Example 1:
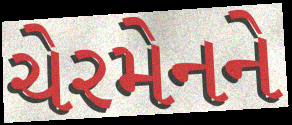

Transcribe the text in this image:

ચેરમેનને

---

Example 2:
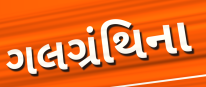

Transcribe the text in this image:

ગલગ્રંથિના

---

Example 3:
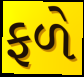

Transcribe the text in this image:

ફળે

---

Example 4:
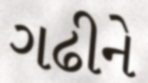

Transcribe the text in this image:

ગઢીને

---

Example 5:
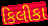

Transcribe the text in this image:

કિલીકા